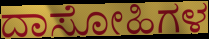
ದಾಸೋಹಿಗಳ